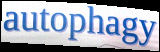
autophagy